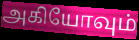
அகியோவும்